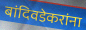
बांदिवडेकरांना